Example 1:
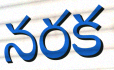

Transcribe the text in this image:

నరక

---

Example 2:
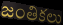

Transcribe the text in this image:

జంతికలు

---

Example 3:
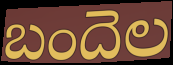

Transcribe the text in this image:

బందెల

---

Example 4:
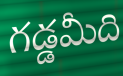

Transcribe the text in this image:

గడ్డమీది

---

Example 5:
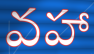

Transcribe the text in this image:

వహా